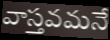
వాస్తవమనే